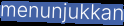
menunjukkan